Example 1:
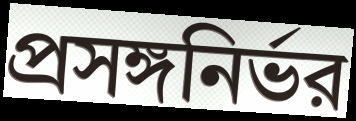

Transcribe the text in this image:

প্রসঙ্গনির্ভর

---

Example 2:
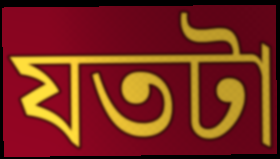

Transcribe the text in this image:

যতটা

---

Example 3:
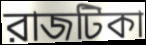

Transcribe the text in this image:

রাজটিকা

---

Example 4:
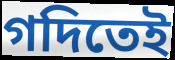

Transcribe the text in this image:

গদিতেই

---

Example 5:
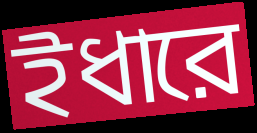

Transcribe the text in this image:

ইধারে